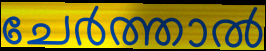
ചേർത്താൽ